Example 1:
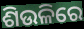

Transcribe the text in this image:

ଶିଉଳିରେ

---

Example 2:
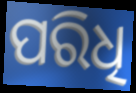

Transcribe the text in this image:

ପରିଧି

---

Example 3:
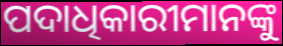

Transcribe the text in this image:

ପଦାଧିକାରୀମାନଙ୍କୁ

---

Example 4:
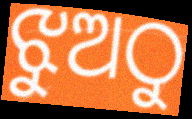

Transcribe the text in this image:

ଝୁଅଠୁ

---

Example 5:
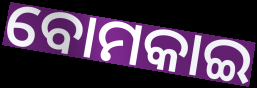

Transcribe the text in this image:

ବୋମକାଇ